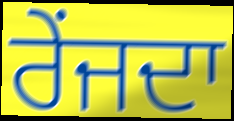
ਰੇਂਜਦਾ